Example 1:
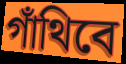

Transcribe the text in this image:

গাঁথিবে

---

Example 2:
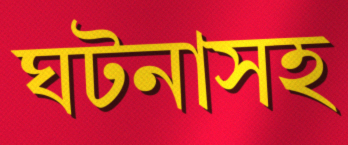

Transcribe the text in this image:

ঘটনাসহ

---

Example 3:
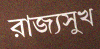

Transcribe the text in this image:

রাজ্যসুখ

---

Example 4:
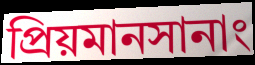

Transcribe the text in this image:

প্রিয়মানসানাং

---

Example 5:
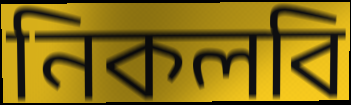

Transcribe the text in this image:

নিকলবি